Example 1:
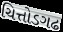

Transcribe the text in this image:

ચિત્તોડગઢ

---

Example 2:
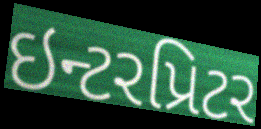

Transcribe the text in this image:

ઇન્ટરપ્રિટર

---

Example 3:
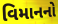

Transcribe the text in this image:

વિમાનનો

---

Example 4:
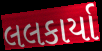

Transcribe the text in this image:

લલકાર્યા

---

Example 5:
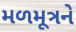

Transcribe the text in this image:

મળમૂત્રને